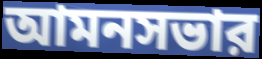
আমনসভার